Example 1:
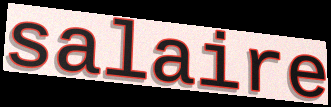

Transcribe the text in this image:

salaire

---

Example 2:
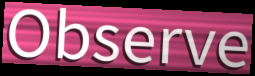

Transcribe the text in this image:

Observe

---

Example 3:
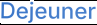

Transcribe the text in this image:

Dejeuner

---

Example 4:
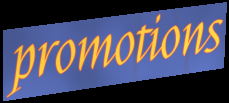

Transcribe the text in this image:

promotions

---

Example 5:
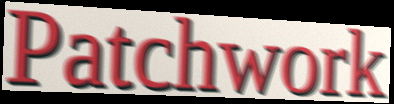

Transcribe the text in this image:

Patchwork